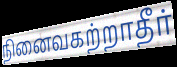
நினைவகற்றாதீர்